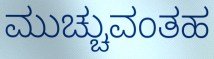
ಮುಚ್ಚುವಂತಹ